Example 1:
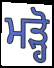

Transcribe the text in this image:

ਮੜ੍ਹੋ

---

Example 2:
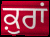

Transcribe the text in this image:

ਕ਼ੁਰਾਂ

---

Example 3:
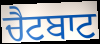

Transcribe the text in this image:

ਚੈਟਬਾਟ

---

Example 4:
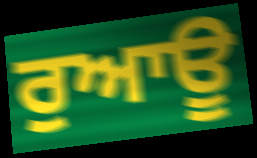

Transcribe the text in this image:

ਰੁਆਊ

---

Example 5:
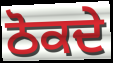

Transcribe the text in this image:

ਠੋਕਦੇ